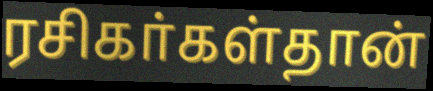
ரசிகர்கள்தான்